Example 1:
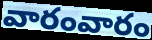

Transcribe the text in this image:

వారంవారం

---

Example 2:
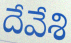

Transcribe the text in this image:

దేవేశి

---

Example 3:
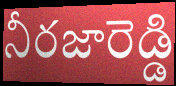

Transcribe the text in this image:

నీరజారెడ్డి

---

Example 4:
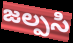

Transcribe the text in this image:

జల్పసి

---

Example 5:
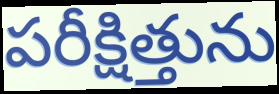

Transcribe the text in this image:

పరీక్షిత్తును